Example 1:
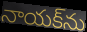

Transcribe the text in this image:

నాయక్‌ను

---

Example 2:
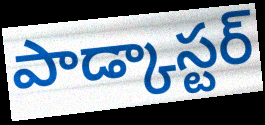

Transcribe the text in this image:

పాడ్కాస్టర్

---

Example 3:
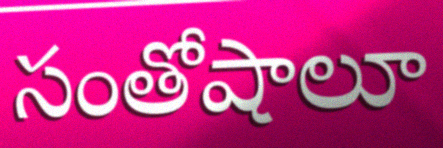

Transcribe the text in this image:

సంతోషాలూ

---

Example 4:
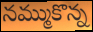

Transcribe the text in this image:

నమ్ముకొన్న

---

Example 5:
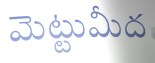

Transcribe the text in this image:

మెట్టుమీద